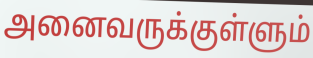
அனைவருக்குள்ளும்